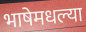
भाषेमधल्या